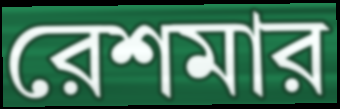
রেশমার